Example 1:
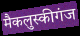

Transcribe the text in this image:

मैकलुस्कीगंज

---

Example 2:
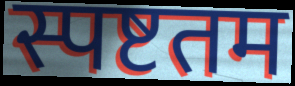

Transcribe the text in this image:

स्पष्टतम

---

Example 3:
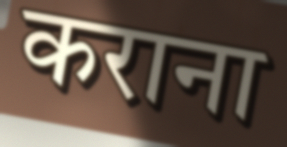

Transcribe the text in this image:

कराना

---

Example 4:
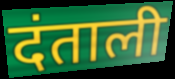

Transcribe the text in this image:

दंताली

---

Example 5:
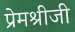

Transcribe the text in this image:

प्रेमश्रीजी